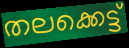
തലക്കെട്ട്